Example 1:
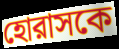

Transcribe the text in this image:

হোরাসকে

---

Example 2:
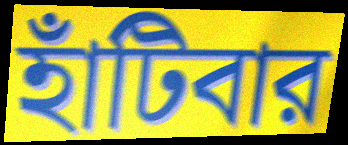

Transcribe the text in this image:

হাঁটিবার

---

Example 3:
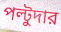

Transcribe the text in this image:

পল্টুদার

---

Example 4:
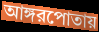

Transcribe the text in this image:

আঙ্গরপোতায়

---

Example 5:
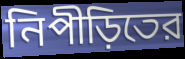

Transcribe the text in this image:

নিপীড়িতের